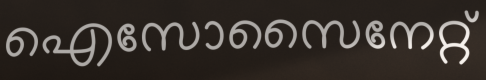
ഐസോസൈനേറ്റ്